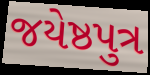
જયેષ્ઠપુત્ર